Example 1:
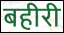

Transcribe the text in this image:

बहीरी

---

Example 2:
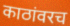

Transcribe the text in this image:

काठांवरच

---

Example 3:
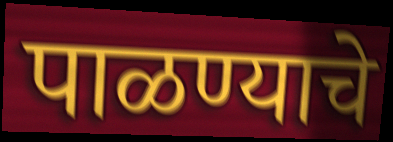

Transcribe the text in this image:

पाळण्याचे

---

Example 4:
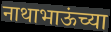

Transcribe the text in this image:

नाथाभाऊंच्या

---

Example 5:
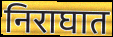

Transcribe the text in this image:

निराघात